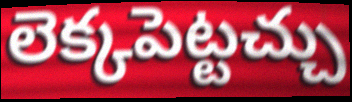
లెక్కపెట్టచ్చు